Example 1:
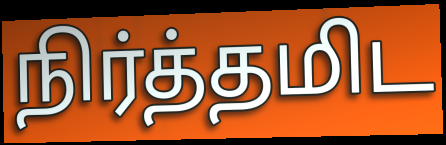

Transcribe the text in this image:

நிர்த்தமிட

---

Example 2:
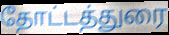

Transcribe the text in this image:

தோட்டத்துரை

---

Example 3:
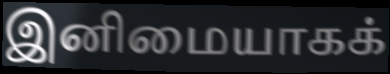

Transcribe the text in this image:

இனிமையாகக்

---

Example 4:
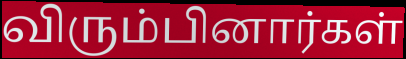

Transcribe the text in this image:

விரும்பினார்கள்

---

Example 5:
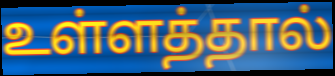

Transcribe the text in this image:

உள்ளத்தால்